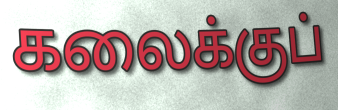
கலைக்குப்